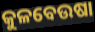
କୁଳବେଉଷା